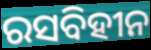
ରସବିହୀନ